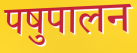
पषुपालन